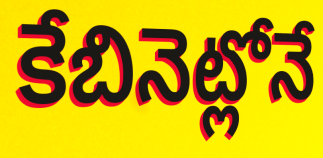
కేబినెట్లోనే